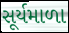
સૂર્યમાળા